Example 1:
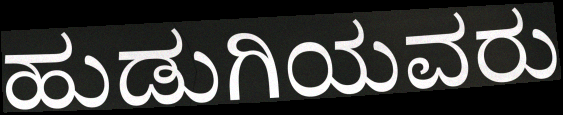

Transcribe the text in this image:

ಹುಡುಗಿಯವರು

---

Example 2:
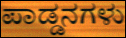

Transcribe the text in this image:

ಪಾಡ್ಡನಗಳು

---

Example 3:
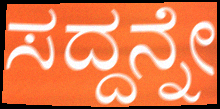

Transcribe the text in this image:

ಸದ್ದನ್ನೇ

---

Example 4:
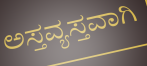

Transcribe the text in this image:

ಅಸ್ತವ್ಯಸ್ತವಾಗಿ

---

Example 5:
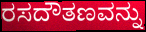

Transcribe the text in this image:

ರಸದೌತಣವನ್ನು